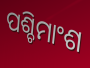
ପଶ୍ଚିମାଂଶ